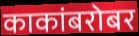
काकांबरोबर